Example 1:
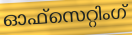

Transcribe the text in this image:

ഓഫ്സെറ്റിംഗ്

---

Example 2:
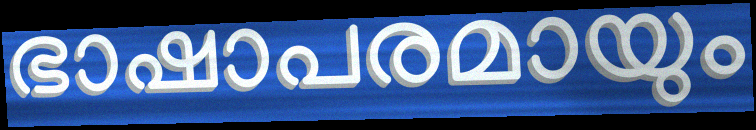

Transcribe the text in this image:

ഭാഷാപരമായും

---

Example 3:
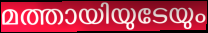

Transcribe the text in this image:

മത്തായിയുടേയും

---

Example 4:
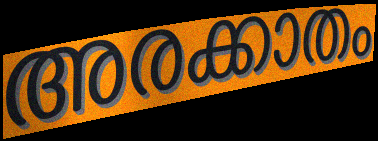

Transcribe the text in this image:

അരക്കാതം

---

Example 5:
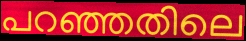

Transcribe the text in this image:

പറഞ്ഞതിലെ